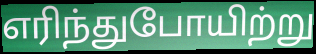
எரிந்துபோயிற்று